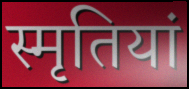
स्मृतियां